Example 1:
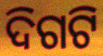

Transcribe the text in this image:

ଦିଗଟି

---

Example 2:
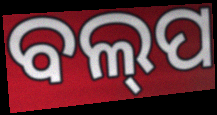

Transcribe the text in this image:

ବଲ୍‍ପ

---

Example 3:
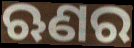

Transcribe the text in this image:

ଋଣର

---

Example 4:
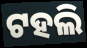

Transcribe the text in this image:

ଟହଲି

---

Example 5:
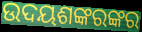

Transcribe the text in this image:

ଉଦୟଶଙ୍କରଙ୍କର